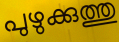
പുഴുക്കുത്തു